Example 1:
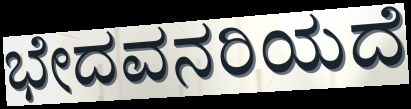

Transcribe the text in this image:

ಭೇದವನರಿಯದೆ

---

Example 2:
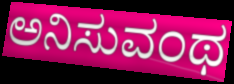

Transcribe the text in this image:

ಅನಿಸುವಂಥ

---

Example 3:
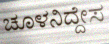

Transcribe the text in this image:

ಚೂಳನಿದ್ದೇಸ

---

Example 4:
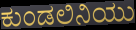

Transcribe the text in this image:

ಕುಂಡಲಿನಿಯು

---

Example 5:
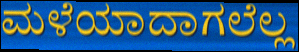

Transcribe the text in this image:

ಮಳೆಯಾದಾಗಲೆಲ್ಲ